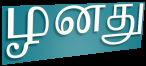
ழனது